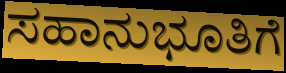
ಸಹಾನುಭೂತಿಗೆ